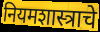
नियमशास्त्राचे